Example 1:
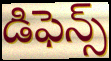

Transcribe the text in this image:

డిఫెన్స్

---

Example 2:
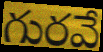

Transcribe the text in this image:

గురవే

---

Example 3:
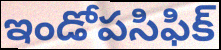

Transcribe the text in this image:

ఇండోపసిఫిక్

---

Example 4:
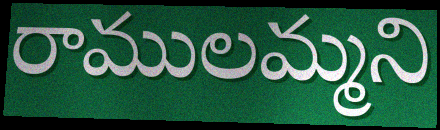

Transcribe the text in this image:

రాములమ్మని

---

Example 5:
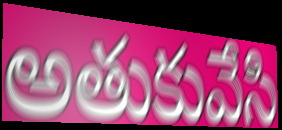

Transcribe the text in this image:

అతుకువేసి